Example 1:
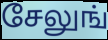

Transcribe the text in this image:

சேலுங்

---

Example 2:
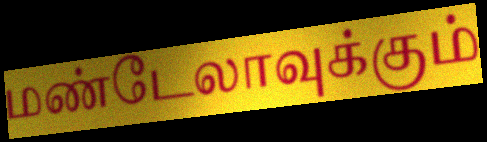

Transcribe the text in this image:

மண்டேலாவுக்கும்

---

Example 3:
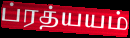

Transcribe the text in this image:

ப்ரத்யயம்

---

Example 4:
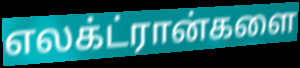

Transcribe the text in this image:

எலக்ட்ரான்களை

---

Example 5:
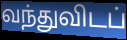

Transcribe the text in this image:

வந்துவிடப்